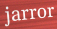
jarror